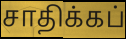
சாதிக்கப்